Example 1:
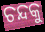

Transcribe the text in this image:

ଚନ୍ଦକୁ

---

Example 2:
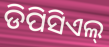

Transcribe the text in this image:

ଡିପିସିଏଲ୍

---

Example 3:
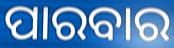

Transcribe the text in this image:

ପାରବାର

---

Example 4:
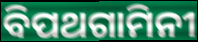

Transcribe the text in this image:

ବିପଥଗାମିନୀ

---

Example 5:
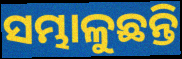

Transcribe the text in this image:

ସମ୍ଭାଳୁଛନ୍ତି